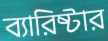
ব্যারিষ্টার